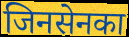
जिनसेनका